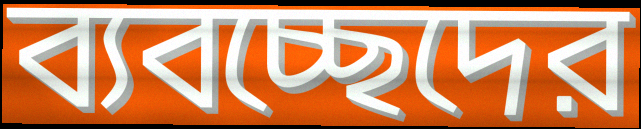
ব্যবচ্ছেদের